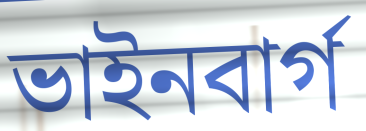
ভাইনবার্গ